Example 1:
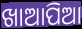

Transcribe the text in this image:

ଖାଆପିଆ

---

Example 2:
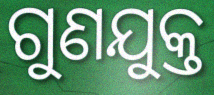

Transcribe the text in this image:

ଗୁଣଯୁକ୍ତ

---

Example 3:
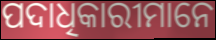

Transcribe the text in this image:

ପଦାଧିକାରୀମାନେ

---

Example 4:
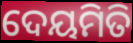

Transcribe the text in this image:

ଦେୟମିତି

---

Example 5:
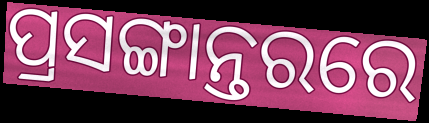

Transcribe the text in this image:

ପ୍ରସଙ୍ଗାନ୍ତରରେ